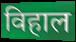
विहाल